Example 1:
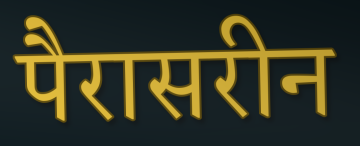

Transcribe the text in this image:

पैरासरीन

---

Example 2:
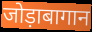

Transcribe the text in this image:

जोड़ाबागान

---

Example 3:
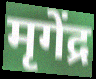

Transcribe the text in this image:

मृगेंद्र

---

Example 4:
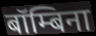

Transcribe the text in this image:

बॉम्बिना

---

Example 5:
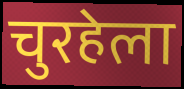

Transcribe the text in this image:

चुरहेला